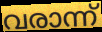
വരാന്ന്